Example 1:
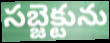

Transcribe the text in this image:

సబ్జెక్టును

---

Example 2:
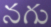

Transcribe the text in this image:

నగు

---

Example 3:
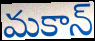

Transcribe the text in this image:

మకాన్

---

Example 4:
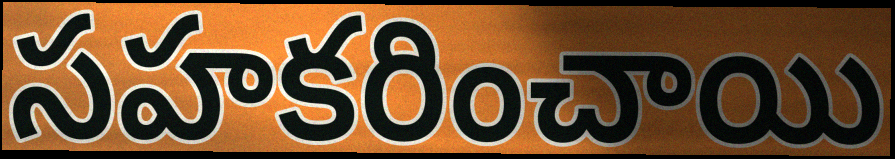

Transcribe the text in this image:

సహకరించాయి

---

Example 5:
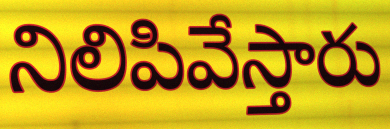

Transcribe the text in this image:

నిలిపివేస్తారు